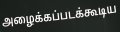
அழைக்கப்படக்கூடிய